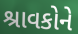
શ્રાવકોને